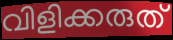
വിളിക്കരുത്